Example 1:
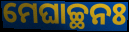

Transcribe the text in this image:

ମେଘାଚ୍ଛନଃ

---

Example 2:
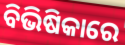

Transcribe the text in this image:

ବିଭିଷିକାରେ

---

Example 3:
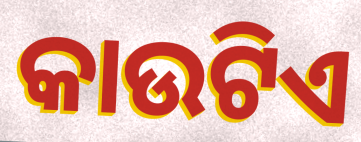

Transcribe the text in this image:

କାଉଟିଏ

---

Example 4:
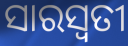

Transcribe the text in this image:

ସାରସ୍ୱତୀ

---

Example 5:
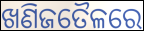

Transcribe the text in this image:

ଖଣିଜତୈଳରେ